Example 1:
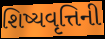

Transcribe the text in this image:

શિષ્યવૃત્તિની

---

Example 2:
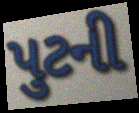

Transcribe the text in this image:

પુટની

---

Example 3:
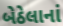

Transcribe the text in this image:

બેઠેલાનાં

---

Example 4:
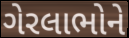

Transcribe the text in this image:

ગેરલાભોને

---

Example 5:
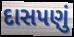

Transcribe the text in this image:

દાસપણું